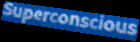
Superconscious